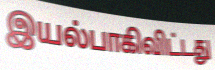
இயல்பாகிவிட்டது